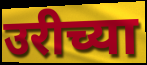
उरीच्या